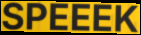
SPEEEK